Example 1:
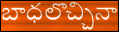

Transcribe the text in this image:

బాధలొచ్చినా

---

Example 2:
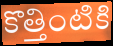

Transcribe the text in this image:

కొత్తింటికి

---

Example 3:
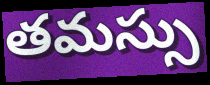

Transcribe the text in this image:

తమస్సు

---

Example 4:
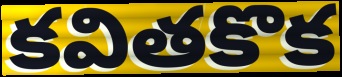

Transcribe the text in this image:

కవితకొక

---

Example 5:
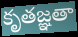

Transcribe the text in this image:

కృతజ్ఞతా